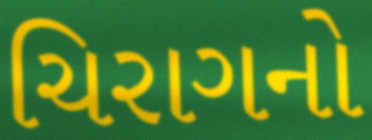
ચિરાગનો